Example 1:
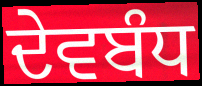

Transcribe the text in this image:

ਦੇਵਬੰਧ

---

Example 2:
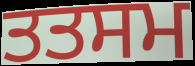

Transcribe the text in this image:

ਤਤਸਮ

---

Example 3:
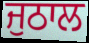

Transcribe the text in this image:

ਜੁਠਾਲ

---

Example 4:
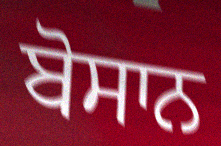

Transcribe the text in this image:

ਬੋਸਾਨ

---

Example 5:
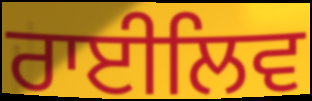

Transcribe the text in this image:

ਰਾਈਲਿਵ